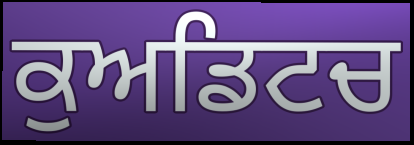
ਕੁਅਡਿਟਚ